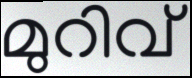
മുറിവ്